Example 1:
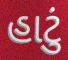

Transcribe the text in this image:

હાટું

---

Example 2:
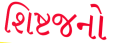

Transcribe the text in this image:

શિષ્ટજનો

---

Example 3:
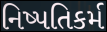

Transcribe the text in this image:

નિષ્પતિકર્મ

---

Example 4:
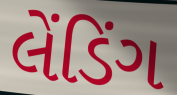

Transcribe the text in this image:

લેંડિંગ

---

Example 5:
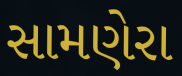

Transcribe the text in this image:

સામણેરા